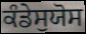
ਕੰਡੇਸੁਯੋਸ